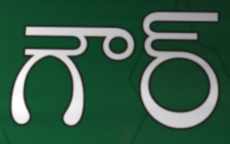
గౌర్